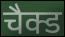
चैक्ड